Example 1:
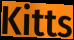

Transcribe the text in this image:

Kitts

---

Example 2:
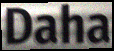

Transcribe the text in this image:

Daha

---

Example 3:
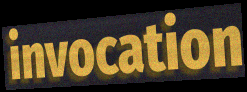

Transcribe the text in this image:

invocation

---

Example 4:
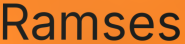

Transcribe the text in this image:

Ramses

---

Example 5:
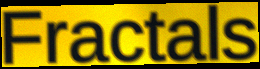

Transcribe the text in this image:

Fractals